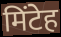
मिंटेह